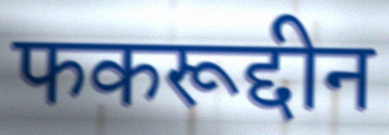
फकरूद्दीन